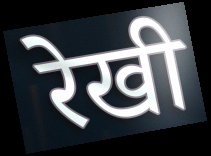
रेखी